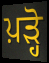
ਪ਼ੜ੍ਹੋ